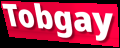
Tobgay